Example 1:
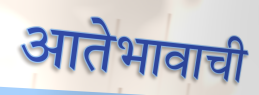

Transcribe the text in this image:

आतेभावाची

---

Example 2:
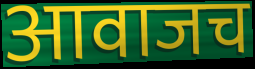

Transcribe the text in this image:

आवाजच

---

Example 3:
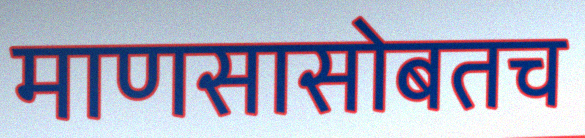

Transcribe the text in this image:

माणसासोबतच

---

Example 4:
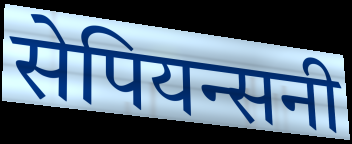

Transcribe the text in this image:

सेपियन्सनी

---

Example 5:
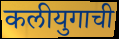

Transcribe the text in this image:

कलीयुगाची